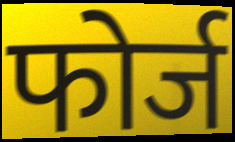
फोर्ज